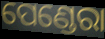
ପେଣ୍ଡେରା